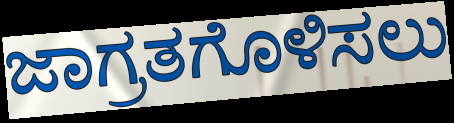
ಜಾಗ್ರತಗೊಳಿಸಲು